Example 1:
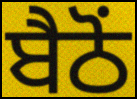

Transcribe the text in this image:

ਬੈਠੋਂ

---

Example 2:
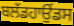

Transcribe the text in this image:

ਬਲੱਡਹਾਉਂਡਸ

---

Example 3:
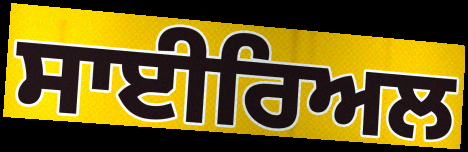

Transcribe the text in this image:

ਸਾਈਰਿਅਲ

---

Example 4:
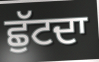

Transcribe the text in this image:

ਛੁੱਟਦਾ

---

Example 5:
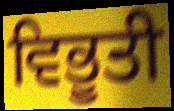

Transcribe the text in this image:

ਵਿਭੂਤੀ